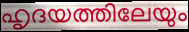
ഹൃദയത്തിലേയും